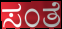
ಸಂತೆ